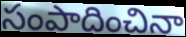
సంపాదించినా